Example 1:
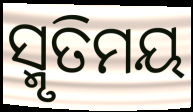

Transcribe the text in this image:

ସ୍ମୃତିମୟ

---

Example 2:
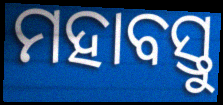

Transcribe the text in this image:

ମହାବସ୍ତୁ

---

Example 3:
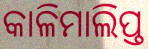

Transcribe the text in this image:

କାଳିମାଲିପ୍ତ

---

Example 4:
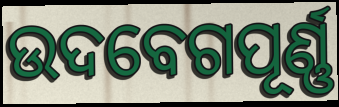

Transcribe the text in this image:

ଉଦବେଗପୂର୍ଣ୍ଣ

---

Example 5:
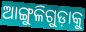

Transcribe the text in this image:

ଆଙ୍ଗୁଳିଗୁଡ଼ାକୁ